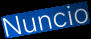
Nuncio